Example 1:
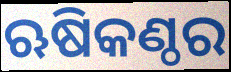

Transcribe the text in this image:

ଋଷିକଣ୍ଠର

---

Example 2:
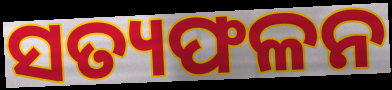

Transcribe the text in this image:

ସତ୍ୟଫଳନ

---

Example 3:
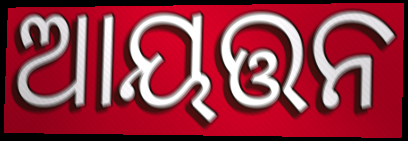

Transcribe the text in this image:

ଆୟତ୍ତନ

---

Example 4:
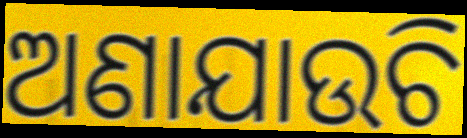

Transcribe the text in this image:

ଅଣାଯାଉଚି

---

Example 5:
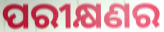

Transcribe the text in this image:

ପରୀକ୍ଷଣର